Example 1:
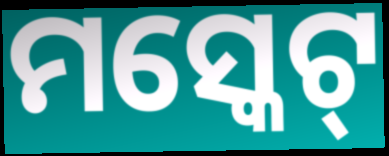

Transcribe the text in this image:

ମସ୍କେଟ୍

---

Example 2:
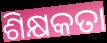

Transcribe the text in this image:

ଶିକ୍ଷକତା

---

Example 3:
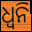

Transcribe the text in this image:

ଧ୍ୱନି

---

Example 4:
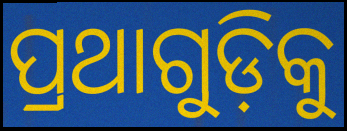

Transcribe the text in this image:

ପ୍ରଥାଗୁଡ଼ିକୁ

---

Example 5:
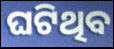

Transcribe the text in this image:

ଘଟିଥିବ